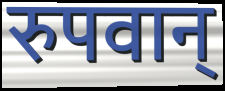
रुपवान्